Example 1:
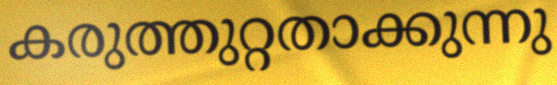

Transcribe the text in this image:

കരുത്തുറ്റതാക്കുന്നു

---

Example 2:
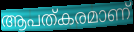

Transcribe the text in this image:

ആപത്കരമാണ്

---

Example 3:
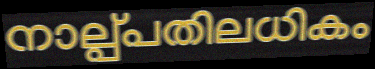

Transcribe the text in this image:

നാല്പ്പതിലധികം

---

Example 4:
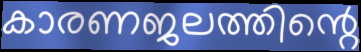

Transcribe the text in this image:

കാരണജലത്തിന്റെ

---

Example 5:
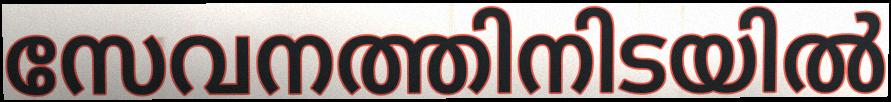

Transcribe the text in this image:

സേവനത്തിനിടയിൽ